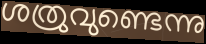
ശത്രുവുണ്ടെന്നു